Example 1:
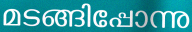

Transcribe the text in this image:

മടങ്ങിപ്പോന്നു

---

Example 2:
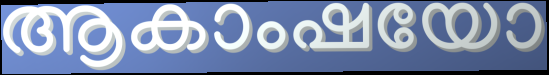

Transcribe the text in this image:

ആകാംഷയോ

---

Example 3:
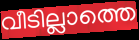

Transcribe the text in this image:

വീടില്ലാത്തെ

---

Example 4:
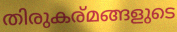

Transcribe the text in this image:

തിരുകര്മങ്ങളുടെ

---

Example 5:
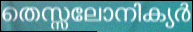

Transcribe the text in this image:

തെസ്സലോനിക്യർ